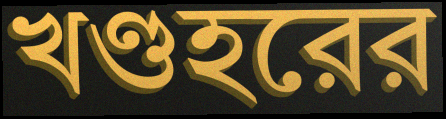
খণ্ডহরের